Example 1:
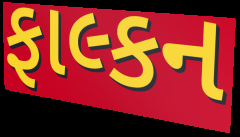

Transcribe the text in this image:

ફાલ્કન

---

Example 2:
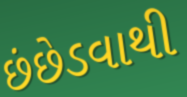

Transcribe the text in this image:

છંછેડવાથી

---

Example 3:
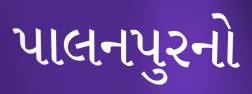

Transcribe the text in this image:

પાલનપુરનો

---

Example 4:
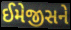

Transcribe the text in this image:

ઈમેજીસને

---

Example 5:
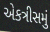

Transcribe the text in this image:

એકત્રીસમું